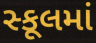
સ્કૂલમાં